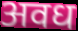
अवध